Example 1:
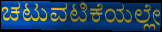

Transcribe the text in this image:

ಚಟುವಟಿಕೆಯಲ್ಲೇ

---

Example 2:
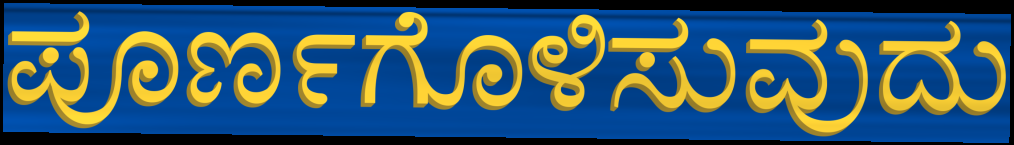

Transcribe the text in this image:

ಪೂರ್ಣಗೊಳಿಸುವುದು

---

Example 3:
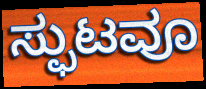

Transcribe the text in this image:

ಸ್ಫುಟವೂ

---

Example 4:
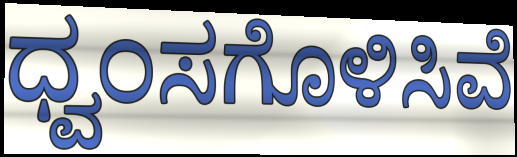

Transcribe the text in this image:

ಧ್ವಂಸಗೊಳಿಸಿವೆ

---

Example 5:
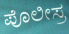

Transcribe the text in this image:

ಪೊಲೀಸ್ರ